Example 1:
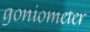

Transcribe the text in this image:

goniometer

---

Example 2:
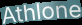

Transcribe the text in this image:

Athlone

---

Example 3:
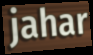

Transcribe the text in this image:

jahar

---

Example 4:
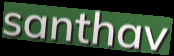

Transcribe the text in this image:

santhav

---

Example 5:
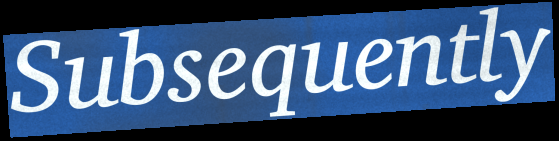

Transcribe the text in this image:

Subsequently